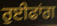
ਰੁਈਫਾਂਗ